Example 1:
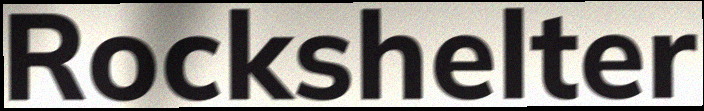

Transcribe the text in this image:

Rockshelter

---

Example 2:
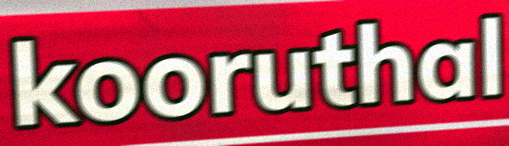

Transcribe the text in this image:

kooruthal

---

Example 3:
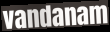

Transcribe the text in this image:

vandanam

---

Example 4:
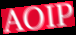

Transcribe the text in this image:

AOIP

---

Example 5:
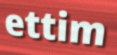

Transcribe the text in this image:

ettim